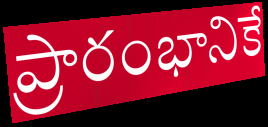
ప్రారంభానికే